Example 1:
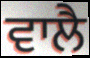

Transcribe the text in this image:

ਵਾਲੈ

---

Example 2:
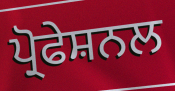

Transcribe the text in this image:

ਪ੍ਰੋਫੇਸ਼ਨਲ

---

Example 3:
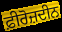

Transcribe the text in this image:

ਫ਼ੀਰੋਜ਼ਦੀਨ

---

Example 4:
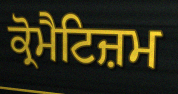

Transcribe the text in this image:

ਕ੍ਰੋਮੈਟਿਜ਼ਮ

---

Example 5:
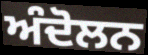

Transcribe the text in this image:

ਅੰਦੋਲਨ